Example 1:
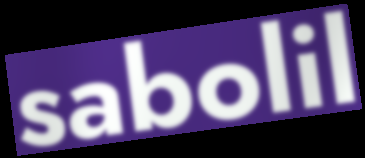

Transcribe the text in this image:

sabolil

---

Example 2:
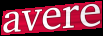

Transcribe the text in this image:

avere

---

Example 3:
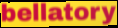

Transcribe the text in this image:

bellatory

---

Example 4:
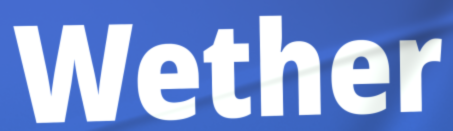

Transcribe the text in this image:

Wether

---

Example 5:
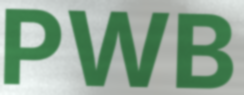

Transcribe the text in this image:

PWB